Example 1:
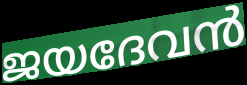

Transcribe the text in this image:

ജയദേവൻ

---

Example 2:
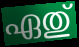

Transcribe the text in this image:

ഏതു്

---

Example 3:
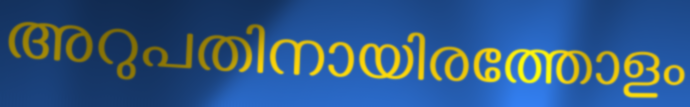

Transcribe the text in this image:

അറുപതിനായിരത്തോളം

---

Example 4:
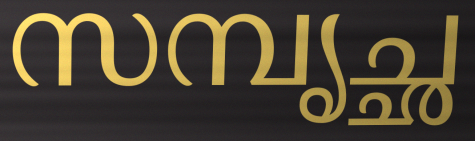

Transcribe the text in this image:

സമ്പൃച്ഛ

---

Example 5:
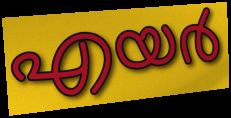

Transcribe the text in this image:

എയർ